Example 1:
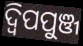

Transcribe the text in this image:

ଦ୍ଵିପପୁଞ୍ଜ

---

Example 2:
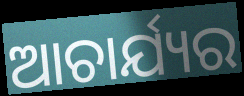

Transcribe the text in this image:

ଆଚାର୍ଯ୍ୟର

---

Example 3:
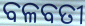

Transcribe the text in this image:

ବଳବତୀ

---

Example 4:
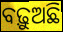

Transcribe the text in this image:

ବଢ଼ୁଅଛି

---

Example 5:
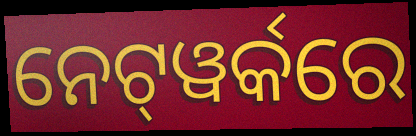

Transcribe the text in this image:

ନେଟ୍‍ୱର୍କରେ